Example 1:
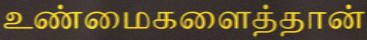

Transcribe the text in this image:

உண்மைகளைத்தான்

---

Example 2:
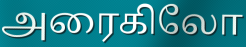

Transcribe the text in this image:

அரைகிலோ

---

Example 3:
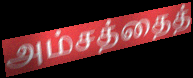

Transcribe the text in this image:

அம்சத்தைத்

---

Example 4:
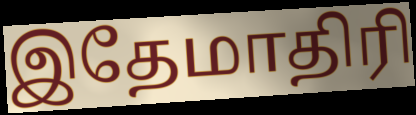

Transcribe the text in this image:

இதேமாதிரி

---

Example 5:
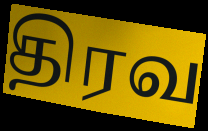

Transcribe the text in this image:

திரவ